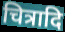
चित्रादि